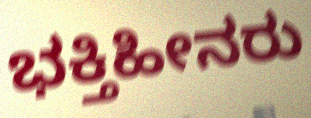
ಭಕ್ತಿಹೀನರು